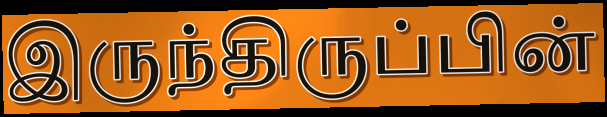
இருந்திருப்பின்